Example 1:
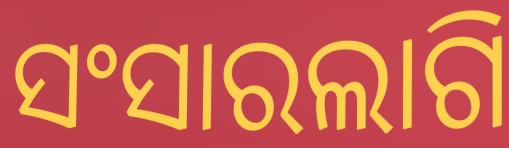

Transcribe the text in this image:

ସଂସାରଲାଗି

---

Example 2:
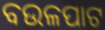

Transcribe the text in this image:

ବଉଳପାଟ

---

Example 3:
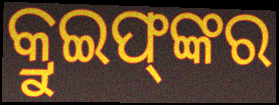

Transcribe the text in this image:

କ୍ରୁଇଫ୍‌ଙ୍କର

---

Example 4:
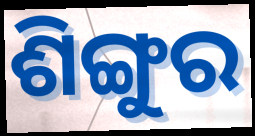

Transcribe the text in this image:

ଶିଙ୍ଗୁର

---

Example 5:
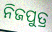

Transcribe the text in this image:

ନିଜପୁତ୍ର